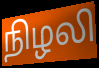
நிழலி